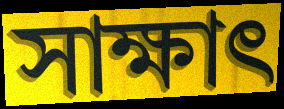
সাক্ষাৎ